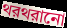
থরথরানো